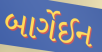
બાર્ગેઈન